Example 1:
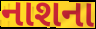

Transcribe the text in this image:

નાશના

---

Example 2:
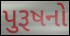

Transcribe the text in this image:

પુરૂષનો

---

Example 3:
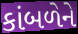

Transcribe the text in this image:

કાંબળેને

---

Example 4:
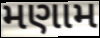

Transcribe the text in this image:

મણામ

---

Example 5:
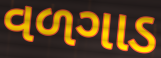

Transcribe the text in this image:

વળગાડ